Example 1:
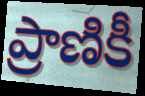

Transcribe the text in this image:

ప్రాణికీ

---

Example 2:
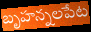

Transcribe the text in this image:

బృహన్నలపేట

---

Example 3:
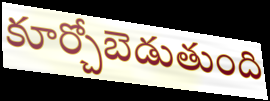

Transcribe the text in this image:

కూర్చోబెడుతుంది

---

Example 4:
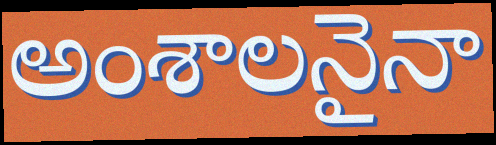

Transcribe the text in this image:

అంశాలనైనా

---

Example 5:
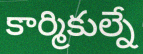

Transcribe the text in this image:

కార్మికుల్నే